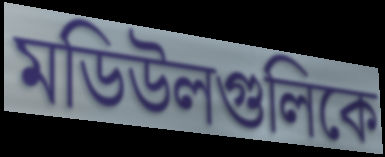
মডিউলগুলিকে